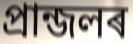
প্ৰান্জলৰ